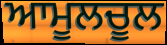
ਆਮੂਲਚੂਲ